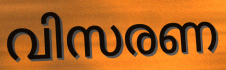
വിസരണ